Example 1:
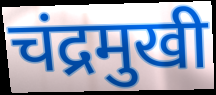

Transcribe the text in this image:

चंद्रमुखी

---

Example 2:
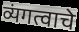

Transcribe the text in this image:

व्यंगत्वाचे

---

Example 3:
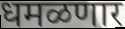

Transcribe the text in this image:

धमळणार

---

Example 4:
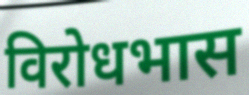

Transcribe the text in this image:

विरोधभास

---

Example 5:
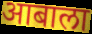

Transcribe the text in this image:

आबाला